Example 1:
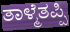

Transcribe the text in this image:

ತಾಳ್ಮೆತಪ್ಪಿ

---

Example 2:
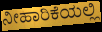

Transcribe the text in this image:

ನೀಹಾರಿಕೆಯಲ್ಲಿ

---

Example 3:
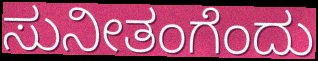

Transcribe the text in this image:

ಸುನೀತಂಗೆಂದು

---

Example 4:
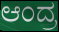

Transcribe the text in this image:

ಆಂದ್ರ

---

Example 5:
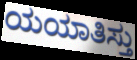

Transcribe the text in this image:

ಯಯಾತಿಸ್ತು